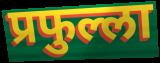
प्रफुल्ला